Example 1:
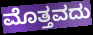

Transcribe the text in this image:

ಮೊತ್ತವದು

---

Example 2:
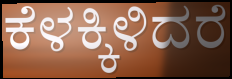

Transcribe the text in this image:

ಕೆಳಕ್ಕಿಳಿದರೆ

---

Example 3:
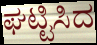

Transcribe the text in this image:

ಘಟ್ಟಿಸಿದ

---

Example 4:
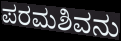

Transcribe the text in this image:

ಪರಮಶಿವನು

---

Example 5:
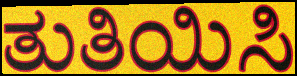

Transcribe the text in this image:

ತುತಿಯಿಸಿ